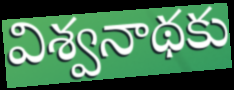
విశ్వనాథకు